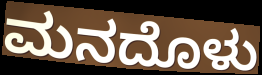
ಮನದೊಳು